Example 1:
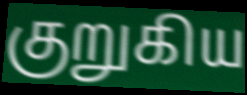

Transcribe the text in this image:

குறுகிய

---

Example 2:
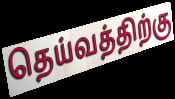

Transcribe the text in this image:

தெய்வத்திற்கு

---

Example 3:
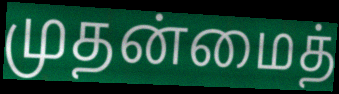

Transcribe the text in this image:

முதன்மைத்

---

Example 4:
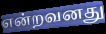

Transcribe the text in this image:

என்றவனது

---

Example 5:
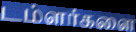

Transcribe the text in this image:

டம்ளர்களை